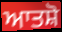
ਆਤਸ਼ੋ